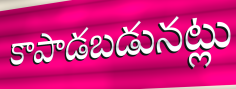
కాపాడబడునట్లు